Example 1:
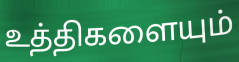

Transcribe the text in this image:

உத்திகளையும்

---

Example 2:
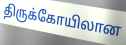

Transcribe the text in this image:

திருக்கோயிலான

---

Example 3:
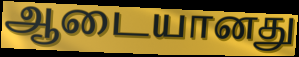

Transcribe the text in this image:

ஆடையானது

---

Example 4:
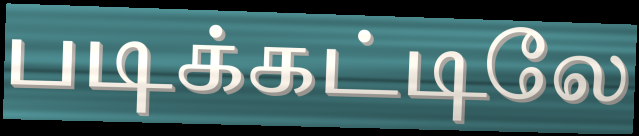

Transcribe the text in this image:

படிக்கட்டிலே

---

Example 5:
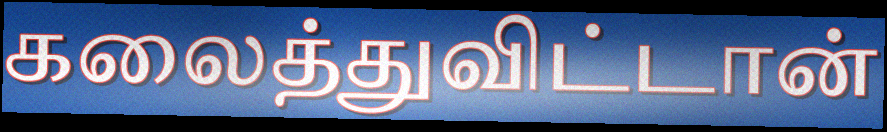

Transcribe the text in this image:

கலைத்துவிட்டான்